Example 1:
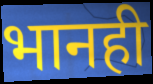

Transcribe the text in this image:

भानही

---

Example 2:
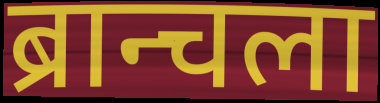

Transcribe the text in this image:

ब्रान्चला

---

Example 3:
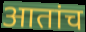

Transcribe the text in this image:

आतांच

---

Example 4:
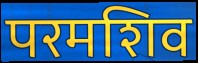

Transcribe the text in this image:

परमशिव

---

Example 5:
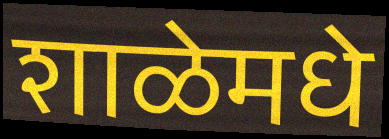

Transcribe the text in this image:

शाळेमधे